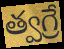
త్వగ్రే